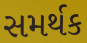
સમર્થક